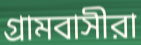
গ্রামবাসীরা